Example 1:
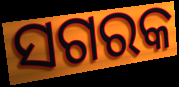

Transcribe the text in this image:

ସଗରକ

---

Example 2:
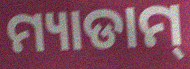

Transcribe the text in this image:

ମ୍ୟାଡାମ୍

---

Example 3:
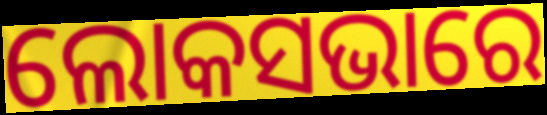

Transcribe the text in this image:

ଲୋକସଭାରେ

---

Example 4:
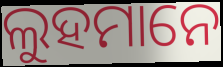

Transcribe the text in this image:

ଲୁହମାନେ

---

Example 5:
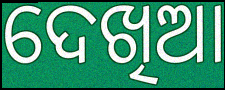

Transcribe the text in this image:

ଦେଖିଆ